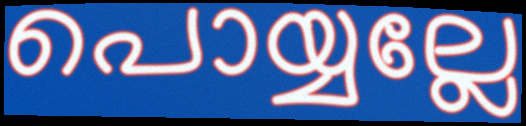
പൊയ്യല്ലേ